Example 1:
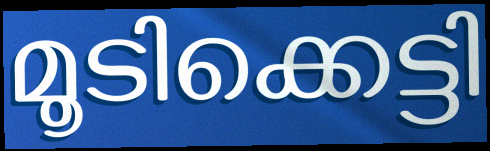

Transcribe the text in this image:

മൂടിക്കെട്ടി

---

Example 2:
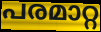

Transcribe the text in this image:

പരമാറ്റ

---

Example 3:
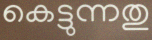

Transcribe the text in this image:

കെട്ടുന്നതു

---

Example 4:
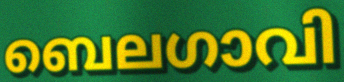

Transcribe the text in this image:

ബെലഗാവി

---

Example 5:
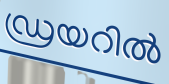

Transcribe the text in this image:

ഡ്രയറിൽ